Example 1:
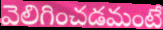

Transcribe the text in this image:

వెలిగించడమంటే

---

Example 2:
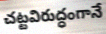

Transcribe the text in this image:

చట్టవిరుద్ధంగానే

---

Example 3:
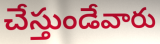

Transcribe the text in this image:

చేస్తుండేవారు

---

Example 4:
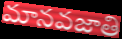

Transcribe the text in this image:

మానవజాతి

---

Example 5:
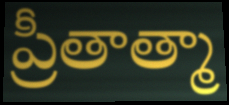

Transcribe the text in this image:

ప్రీతాత్మా